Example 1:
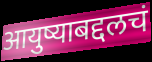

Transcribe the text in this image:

आयुष्याबद्दलचं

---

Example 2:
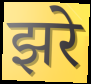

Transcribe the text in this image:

झरे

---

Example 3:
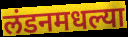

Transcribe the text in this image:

लंडनमधल्या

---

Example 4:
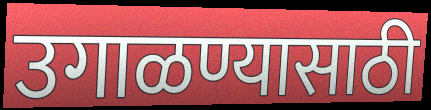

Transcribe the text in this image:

उगाळण्यासाठी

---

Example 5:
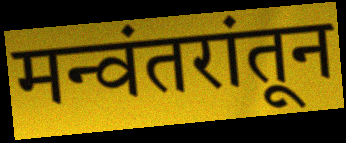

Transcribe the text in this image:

मन्वंतरांतून